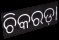
ଚିକରଡ଼ା